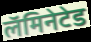
लॅमिनेटेड